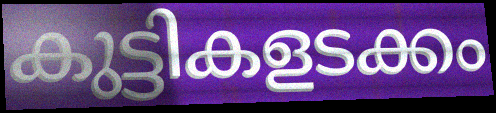
കുട്ടികളടക്കം